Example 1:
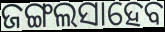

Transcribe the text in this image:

ଜଙ୍ଗଲସାହେବ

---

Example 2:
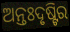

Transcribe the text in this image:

ଅନ୍ତଃଦୃଷ୍ଟିର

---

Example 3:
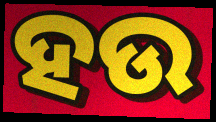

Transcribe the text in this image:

ହଉ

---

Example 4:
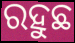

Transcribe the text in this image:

ରହୁଛ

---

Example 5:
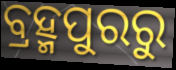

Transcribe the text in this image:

ବ୍ରହ୍ମପୁରରୁ